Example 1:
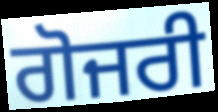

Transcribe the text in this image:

ਗੋਜਰੀ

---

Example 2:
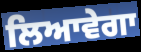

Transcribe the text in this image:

ਲਿਆਵੇਗਾ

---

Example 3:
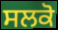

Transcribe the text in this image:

ਸਲਕੋ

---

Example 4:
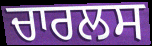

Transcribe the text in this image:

ਚਾਰਲਸ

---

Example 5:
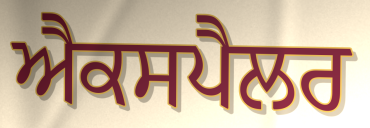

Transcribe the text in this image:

ਐਕਸਪੈਲਰ